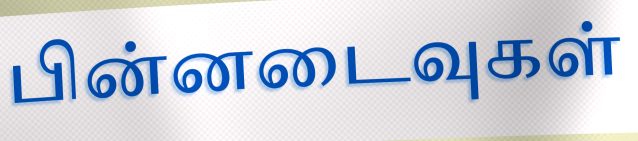
பின்னடைவுகள்